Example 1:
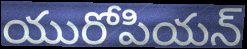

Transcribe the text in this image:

యురోపియన్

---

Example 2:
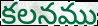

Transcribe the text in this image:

కలనము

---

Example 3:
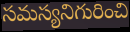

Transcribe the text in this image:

సమస్యనిగురించి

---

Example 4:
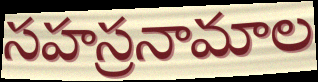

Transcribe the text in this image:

సహస్రనామాల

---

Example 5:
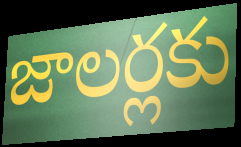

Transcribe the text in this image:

జాలర్లకు